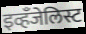
इव्हँजेलिस्ट